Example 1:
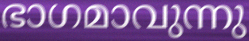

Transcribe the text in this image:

ഭാഗമാവുന്നു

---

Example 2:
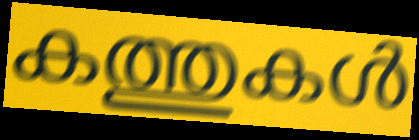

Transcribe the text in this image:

കത്തുകൾ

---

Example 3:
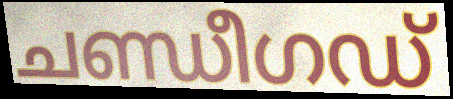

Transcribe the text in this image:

ചണ്ഡീഗഡ്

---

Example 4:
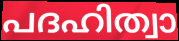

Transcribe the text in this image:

പദഹിത്വാ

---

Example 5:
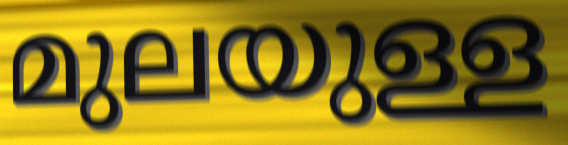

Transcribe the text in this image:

മുലയുള്ള